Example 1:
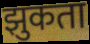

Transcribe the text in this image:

झुकता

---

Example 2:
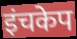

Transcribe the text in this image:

इंचकेप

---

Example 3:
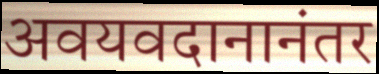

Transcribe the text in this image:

अवयवदानानंतर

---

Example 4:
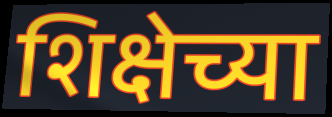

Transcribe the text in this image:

शिक्षेच्या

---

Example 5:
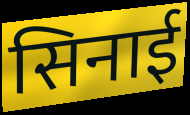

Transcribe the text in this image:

सिनाई